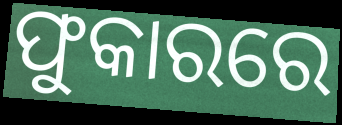
ଫୁକାରରେ